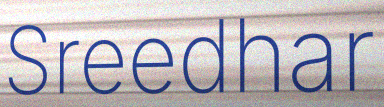
Sreedhar